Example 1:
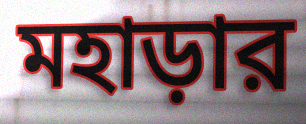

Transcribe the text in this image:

মহাড়ার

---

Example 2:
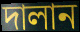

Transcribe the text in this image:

দালান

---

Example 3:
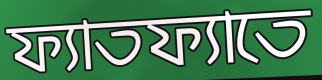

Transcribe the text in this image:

ফ্যাতফ্যাতে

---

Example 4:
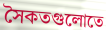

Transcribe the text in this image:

সৈকতগুলোতে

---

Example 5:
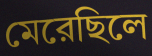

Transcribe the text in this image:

মেরেছিলে